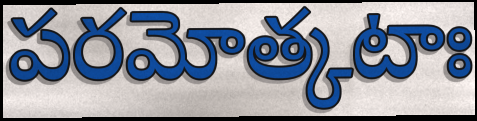
పరమోత్కటాః